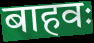
बाहवः